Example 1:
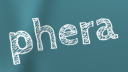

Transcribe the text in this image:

phera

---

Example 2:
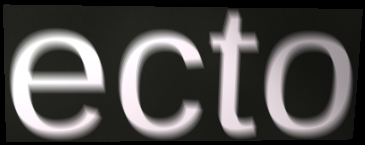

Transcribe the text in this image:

ecto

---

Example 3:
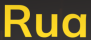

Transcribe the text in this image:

Rua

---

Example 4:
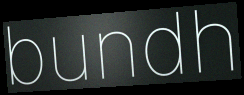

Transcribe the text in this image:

bundh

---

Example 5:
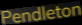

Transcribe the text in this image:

Pendleton